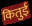
कितुई